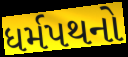
ધર્મપથનો